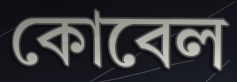
কোবেল